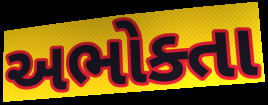
અભોક્તા